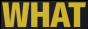
WHAT